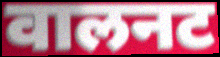
वालनट